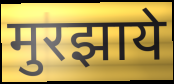
मुरझाये